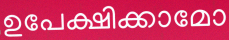
ഉപേക്ഷിക്കാമോ